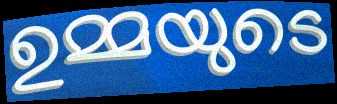
ഉമ്മയുടെ